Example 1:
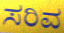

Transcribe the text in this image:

ಸರಿವ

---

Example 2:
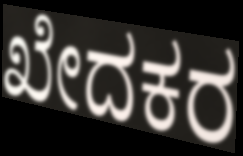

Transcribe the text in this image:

ಖೇದಕರ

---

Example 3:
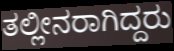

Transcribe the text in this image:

ತಲ್ಲೀನರಾಗಿದ್ದರು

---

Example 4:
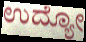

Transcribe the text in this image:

ಉದ್ಯೋ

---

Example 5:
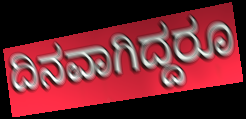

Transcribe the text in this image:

ದಿನವಾಗಿದ್ದರೂ